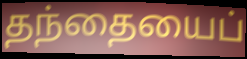
தந்தையைப்